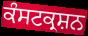
ਕੰਸਟਕ੍ਰਸ਼ਨ